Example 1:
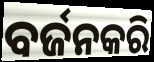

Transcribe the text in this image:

ବର୍ଜନକରି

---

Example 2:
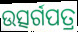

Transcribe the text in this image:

ଉତ୍ସର୍ଗପତ୍ର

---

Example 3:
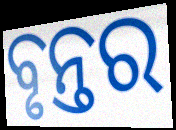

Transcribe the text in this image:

ବୃନ୍ତର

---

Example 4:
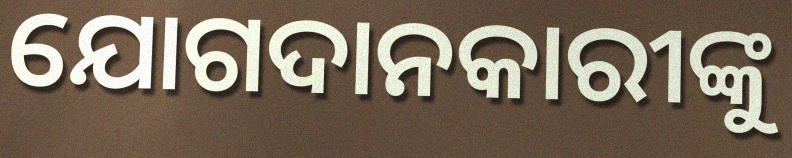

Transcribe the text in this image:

ଯୋଗଦାନକାରୀଙ୍କୁ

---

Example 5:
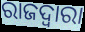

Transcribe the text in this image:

ରାଜଦ୍ୱାରା